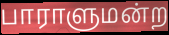
பாராளுமன்ற